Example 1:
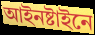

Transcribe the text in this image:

আইনষ্টাইনে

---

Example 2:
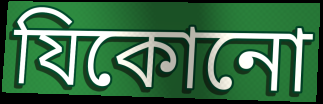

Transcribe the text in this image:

যিকোনো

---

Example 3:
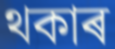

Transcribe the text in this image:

থকাৰ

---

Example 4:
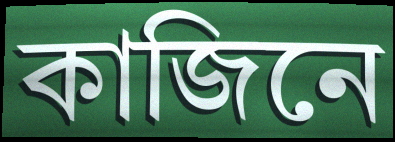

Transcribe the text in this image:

কাজিনে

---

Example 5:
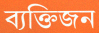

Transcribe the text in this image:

ব্যক্তিজন